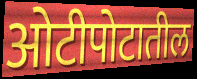
ओटीपोटातील